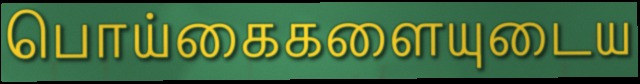
பொய்கைகளையுடைய